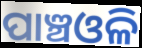
ପାଞ୍ଚଓଳି